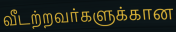
வீடற்றவர்களுக்கான